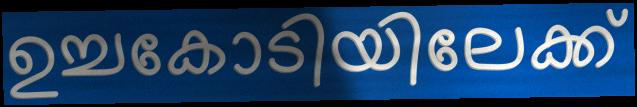
ഉച്ചകോടിയിലേക്ക്